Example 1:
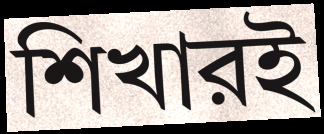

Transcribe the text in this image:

শিখারই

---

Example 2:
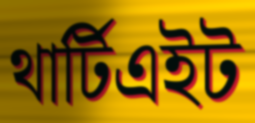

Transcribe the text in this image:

থার্টিএইট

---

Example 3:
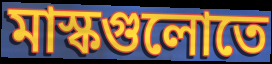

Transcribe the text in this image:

মাস্কগুলোতে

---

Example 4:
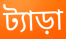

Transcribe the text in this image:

ট্যাড়া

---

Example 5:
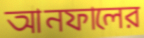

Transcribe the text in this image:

আনফালের